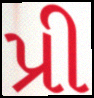
પ્રી